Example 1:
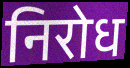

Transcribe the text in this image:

निरोध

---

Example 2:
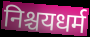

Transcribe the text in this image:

निश्चयधर्म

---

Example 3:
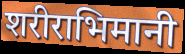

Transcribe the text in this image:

शरीराभिमानी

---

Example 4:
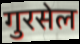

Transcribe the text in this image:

गुरसेल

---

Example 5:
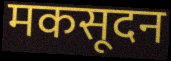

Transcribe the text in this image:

मकसूदन